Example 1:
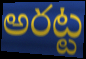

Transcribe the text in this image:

అరట్ట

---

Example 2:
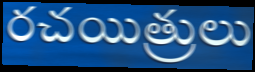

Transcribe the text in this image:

రచయిత్రులు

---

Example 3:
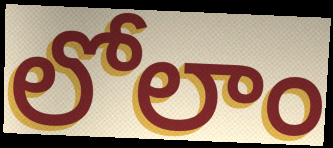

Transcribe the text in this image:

లోలాం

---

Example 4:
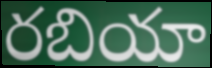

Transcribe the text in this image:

రబియా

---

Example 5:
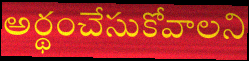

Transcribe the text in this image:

అర్థంచేసుకోవాలని